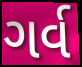
ગર્વ